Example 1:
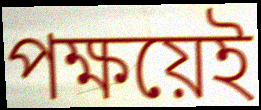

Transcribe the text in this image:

পক্ষয়েই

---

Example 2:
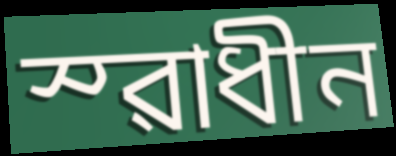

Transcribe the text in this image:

স্ৱাধীন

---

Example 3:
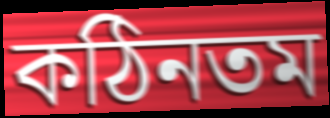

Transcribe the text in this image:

কঠিনতম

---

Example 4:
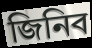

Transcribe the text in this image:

জিনিব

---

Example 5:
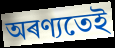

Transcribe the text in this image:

অৰণ্যতেই